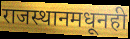
राजस्थानमधूनही